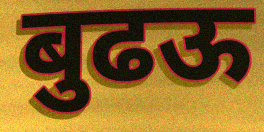
बुढऊ